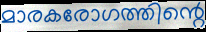
മാരകരോഗത്തിന്റെ